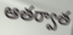
ఆతర్వాత